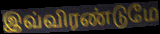
இவ்விரண்டுமே